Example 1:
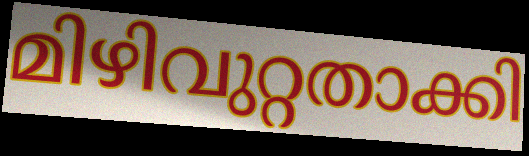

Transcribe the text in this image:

മിഴിവുറ്റതാക്കി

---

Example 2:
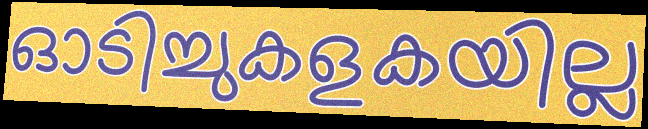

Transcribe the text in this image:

ഓടിച്ചുകളകയില്ല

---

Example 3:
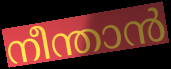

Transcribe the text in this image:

നീന്താൻ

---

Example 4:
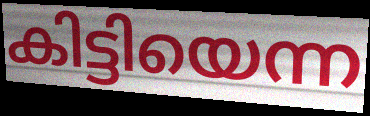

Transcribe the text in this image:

കിട്ടിയെന്ന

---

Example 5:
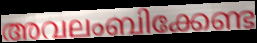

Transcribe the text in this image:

അവലംബിക്കേണ്ട